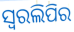
ସ୍ୱରଲିପିର